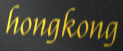
hongkong